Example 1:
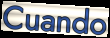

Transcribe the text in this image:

Cuando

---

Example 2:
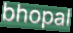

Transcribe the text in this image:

bhopal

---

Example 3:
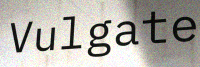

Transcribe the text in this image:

Vulgate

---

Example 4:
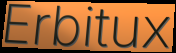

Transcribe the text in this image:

Erbitux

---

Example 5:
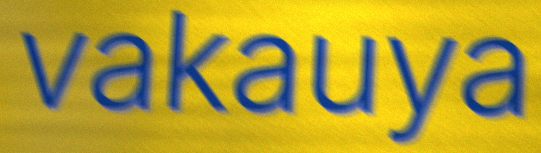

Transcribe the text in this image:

vakauya